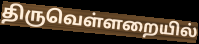
திருவெள்ளறையில்